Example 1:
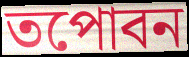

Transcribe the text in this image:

তপোবন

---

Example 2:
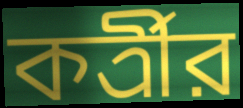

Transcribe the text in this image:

কর্ত্রীর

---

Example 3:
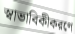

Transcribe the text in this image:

স্বাভাবিকীকরণে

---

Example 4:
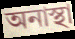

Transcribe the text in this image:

অনাস্থা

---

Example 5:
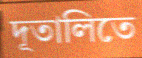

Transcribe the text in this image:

দূতালিতে